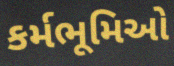
કર્મભૂમિઓ